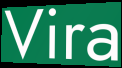
Vira